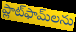
ప్లాట్‌ఫామ్‌లను